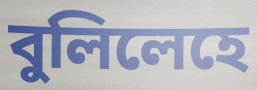
বুলিলেহে